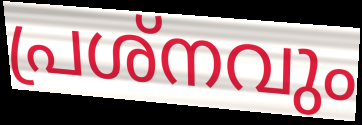
പ്രശ്നവും